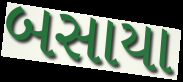
બસાયા